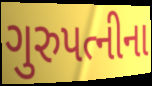
ગુરુપત્નીના